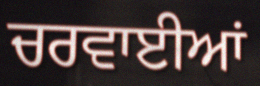
ਚਰਵਾਈਆਂ